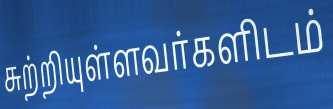
சுற்றியுள்ளவர்களிடம்